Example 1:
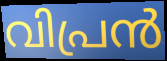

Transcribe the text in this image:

വിപ്രൻ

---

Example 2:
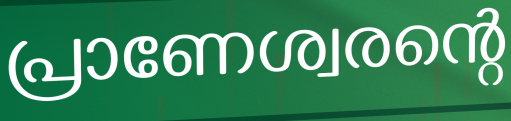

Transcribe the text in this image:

പ്രാണേശ്വരന്റെ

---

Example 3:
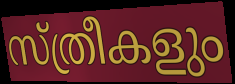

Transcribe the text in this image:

സ്ത്രീകളും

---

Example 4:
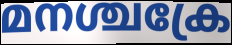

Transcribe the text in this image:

മനശ്ചക്രേ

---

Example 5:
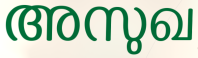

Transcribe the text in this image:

അസുഖ